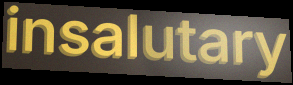
insalutary